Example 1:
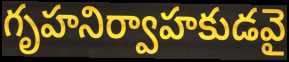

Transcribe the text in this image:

గృహనిర్వాహకుడవై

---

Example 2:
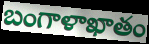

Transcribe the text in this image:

బంగాళాఖాతం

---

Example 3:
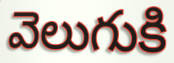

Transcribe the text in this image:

వెలుగుకి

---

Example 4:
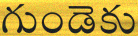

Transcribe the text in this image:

గుండెకు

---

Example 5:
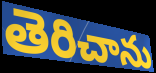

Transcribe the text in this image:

తెరిచాను